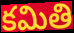
కమితి